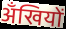
अँखियों